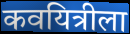
कवयित्रीला